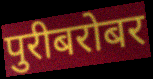
पुरीबरोबर